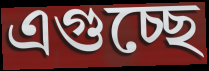
এগুচ্ছে